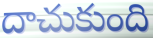
దాచుకుంది